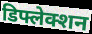
डिफ्लेक्शन